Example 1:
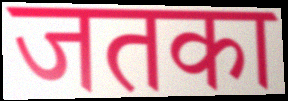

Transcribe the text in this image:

जतका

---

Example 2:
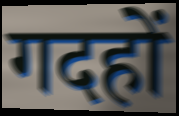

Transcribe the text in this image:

गदहों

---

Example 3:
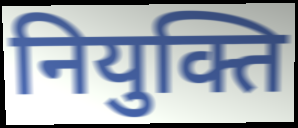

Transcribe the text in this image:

नियुक्ति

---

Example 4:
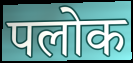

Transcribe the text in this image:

पलोक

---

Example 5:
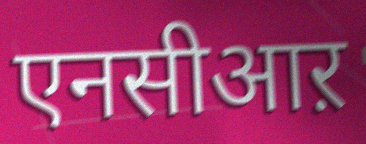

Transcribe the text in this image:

एनसीआऱ